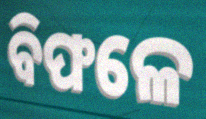
ବିଫଳେ